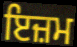
ਇਜ਼ਮ